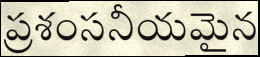
ప్రశంసనీయమైన